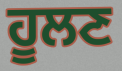
ਹੂਲਣ